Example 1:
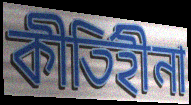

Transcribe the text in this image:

কীর্তিহীনা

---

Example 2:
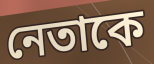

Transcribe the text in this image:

নেতাকে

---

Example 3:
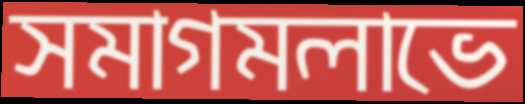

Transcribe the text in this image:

সমাগমলাভে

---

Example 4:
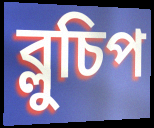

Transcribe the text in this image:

ব্লুচিপ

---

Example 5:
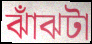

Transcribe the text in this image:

ঝাঁঝটা